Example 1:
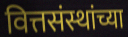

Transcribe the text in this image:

वित्तसंस्थांच्या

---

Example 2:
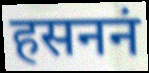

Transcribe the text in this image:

हसननं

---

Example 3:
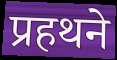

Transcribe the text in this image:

प्रहथने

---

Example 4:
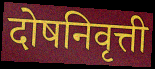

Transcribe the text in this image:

दोषनिवृत्ती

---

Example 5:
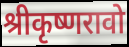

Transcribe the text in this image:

श्रीकृष्णरावो